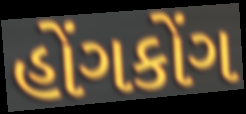
હોંગકોંગ